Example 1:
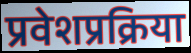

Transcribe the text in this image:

प्रवेशप्रक्रिया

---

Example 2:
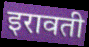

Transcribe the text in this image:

इरावती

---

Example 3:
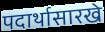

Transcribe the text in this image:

पदार्थासारखे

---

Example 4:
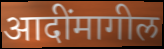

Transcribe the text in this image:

आदींमागील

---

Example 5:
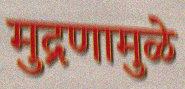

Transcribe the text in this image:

मुद्रणामुळे